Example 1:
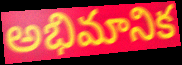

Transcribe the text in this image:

అభిమానిక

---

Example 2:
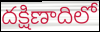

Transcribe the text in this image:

దక్షిణాదిలో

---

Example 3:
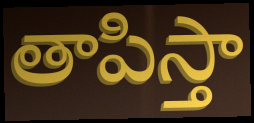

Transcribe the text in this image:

తాపిస్తా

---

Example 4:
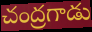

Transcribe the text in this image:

చంద్రగాడు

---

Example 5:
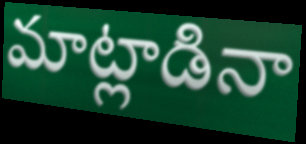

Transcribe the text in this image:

మాట్లాడినా